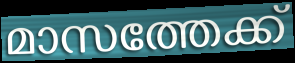
മാസത്തേക്ക്